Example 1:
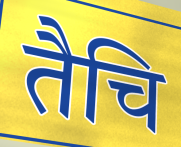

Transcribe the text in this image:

तैचि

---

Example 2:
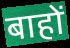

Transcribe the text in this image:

बाहों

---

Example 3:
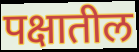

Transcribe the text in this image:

पक्षातील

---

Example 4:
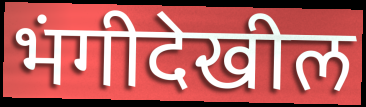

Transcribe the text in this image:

भंगीदेखील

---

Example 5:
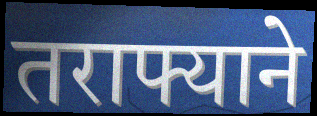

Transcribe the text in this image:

तराफ्याने